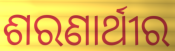
ଶରଣାର୍ଥୀର